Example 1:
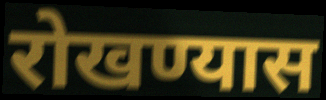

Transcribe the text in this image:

रोखण्यास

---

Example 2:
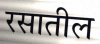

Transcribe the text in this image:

रसातील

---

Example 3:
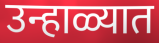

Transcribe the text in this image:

उन्हाळ्यात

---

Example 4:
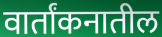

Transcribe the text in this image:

वार्तांकनातील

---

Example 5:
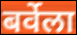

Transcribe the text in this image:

बर्वेला